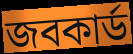
জবকার্ড